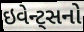
ઇવેન્ટ્સનો